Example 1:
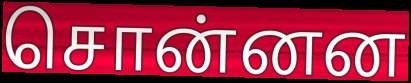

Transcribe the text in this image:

சொன்னன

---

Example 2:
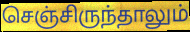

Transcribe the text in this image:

செஞ்சிருந்தாலும்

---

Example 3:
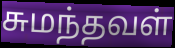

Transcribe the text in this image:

சுமந்தவள்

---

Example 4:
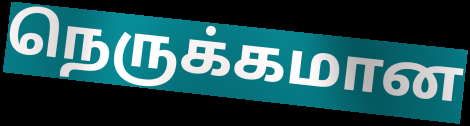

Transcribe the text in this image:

நெருக்கமான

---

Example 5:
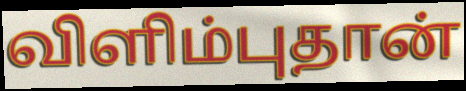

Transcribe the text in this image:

விளிம்புதான்